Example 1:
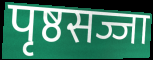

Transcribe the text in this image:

पृष्ठसज्जा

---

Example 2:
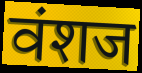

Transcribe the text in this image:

वंशज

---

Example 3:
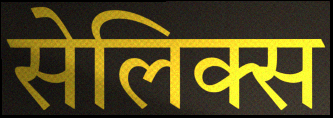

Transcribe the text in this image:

सेलिक्स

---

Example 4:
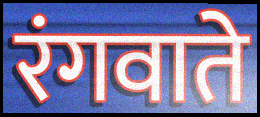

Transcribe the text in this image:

रंगवाते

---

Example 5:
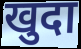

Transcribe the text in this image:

खुदा